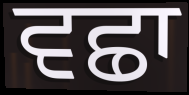
ਵਛਾ